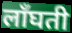
लाँघती